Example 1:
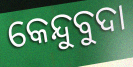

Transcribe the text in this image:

କେନ୍ଦୁବୁଦା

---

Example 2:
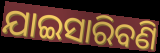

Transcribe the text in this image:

ଯାଇସାରିବଣି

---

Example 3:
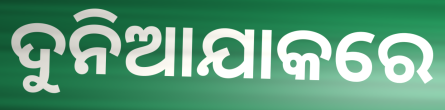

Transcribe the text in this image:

ଦୁନିଆଯାକରେ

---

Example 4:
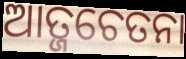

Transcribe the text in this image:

ଆତ୍ଜଚେତନା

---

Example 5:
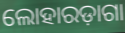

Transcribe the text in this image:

ଲୋହାରଡ଼ାଗା